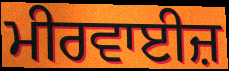
ਮੀਰਵਾਈਜ਼